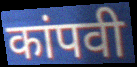
कांपवी